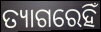
ତ୍ୟାଗରେହିଁ